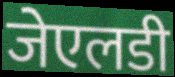
जेएलडी